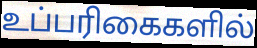
உப்பரிகைகளில்